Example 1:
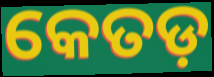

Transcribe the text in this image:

କେତଡ଼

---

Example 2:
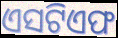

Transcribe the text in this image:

ଏସଟିଏଫ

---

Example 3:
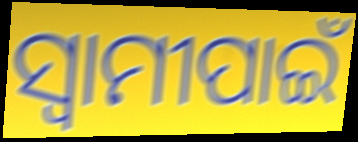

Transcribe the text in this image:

ସ୍ୱାମୀପାଇଁ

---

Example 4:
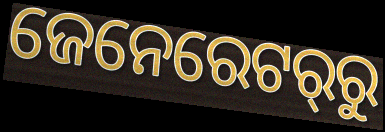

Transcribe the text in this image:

ଜେନେରେଟର୍‌ରୁ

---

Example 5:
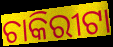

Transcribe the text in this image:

ଚାକିରୀଟା